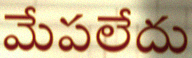
మేపలేదు